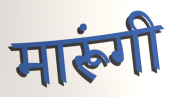
मारूंगी